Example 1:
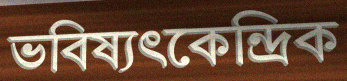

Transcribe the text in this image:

ভবিষ্যৎকেন্দ্রিক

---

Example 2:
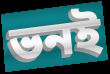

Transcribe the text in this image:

ভনই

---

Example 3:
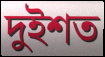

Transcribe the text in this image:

দুইশত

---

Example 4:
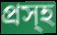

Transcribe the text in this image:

প্রস্হ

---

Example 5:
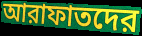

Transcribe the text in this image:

আরাফাতদের